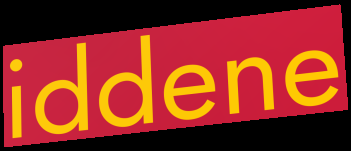
iddene